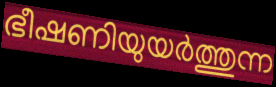
ഭീഷണിയുയർത്തുന്ന